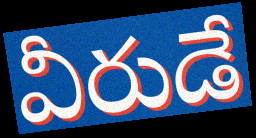
వీరుడే